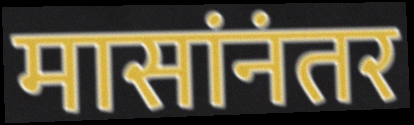
मासांनंतर